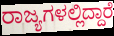
ರಾಜ್ಯಗಳಲ್ಲಿದ್ದಾರೆ